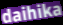
daihika